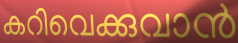
കറിവെക്കുവാൻ